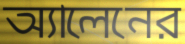
অ্যালেনের